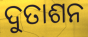
ଦୁତାଶନ